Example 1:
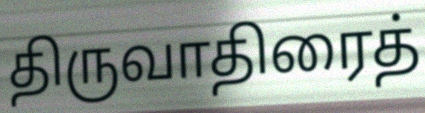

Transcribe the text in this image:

திருவாதிரைத்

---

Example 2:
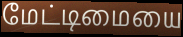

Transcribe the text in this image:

மேட்டிமையை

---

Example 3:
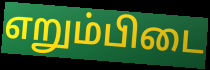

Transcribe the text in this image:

எறும்பிடை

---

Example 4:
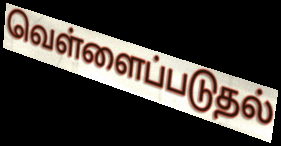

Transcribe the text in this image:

வெள்ளைப்படுதல்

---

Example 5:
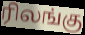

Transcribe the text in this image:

ரிலங்கு